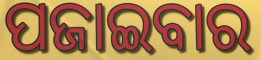
ପଜାଇବାର